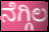
ನೆಗ್ಗಿಲ